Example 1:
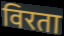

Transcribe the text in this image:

विरता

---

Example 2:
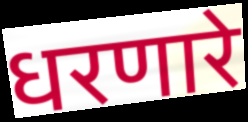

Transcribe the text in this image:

धरणारे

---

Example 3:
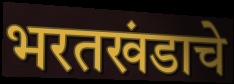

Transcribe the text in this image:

भरतखंडाचे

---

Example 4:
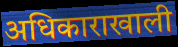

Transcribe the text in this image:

अधिकाराखाली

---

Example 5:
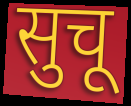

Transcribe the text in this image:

सुचू